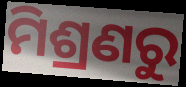
ମିଶ୍ରଣରୁ